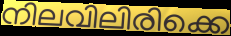
നിലവിലിരിക്കെ